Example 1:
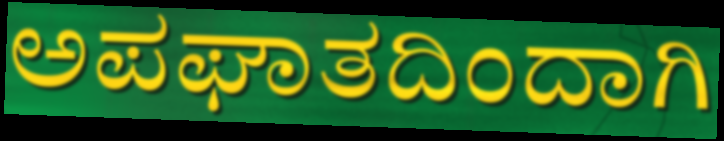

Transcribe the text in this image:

ಅಪಘಾತದಿಂದಾಗಿ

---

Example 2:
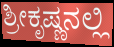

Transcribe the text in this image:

ಶ್ರೀಕೃಷ್ಣನಲ್ಲಿ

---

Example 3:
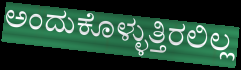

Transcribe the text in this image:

ಅಂದುಕೊಳ್ಳುತ್ತಿರಲಿಲ್ಲ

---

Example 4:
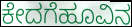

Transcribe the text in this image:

ಕೇದಗೆಹೂವಿನ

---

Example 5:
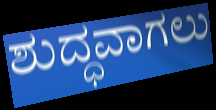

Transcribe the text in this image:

ಶುದ್ಧವಾಗಲು